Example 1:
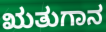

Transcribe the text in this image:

ಋತುಗಾನ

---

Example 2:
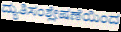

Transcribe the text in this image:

ದ್ಯುತಿಸಂಶ್ಲೇಷಣೆಯಿಂದ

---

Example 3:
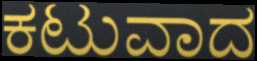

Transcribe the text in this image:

ಕಟುವಾದ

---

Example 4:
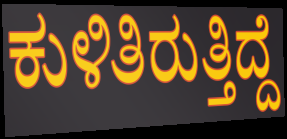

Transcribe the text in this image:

ಕುಳಿತಿರುತ್ತಿದ್ದೆ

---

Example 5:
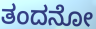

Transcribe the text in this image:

ತಂದನೋ